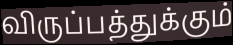
விருப்பத்துக்கும்